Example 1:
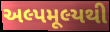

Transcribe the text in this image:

અલ્પમૂલ્યથી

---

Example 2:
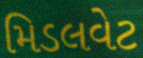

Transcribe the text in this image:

મિડલવેટ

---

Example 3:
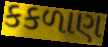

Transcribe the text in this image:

કકળાણ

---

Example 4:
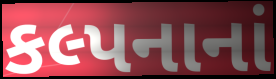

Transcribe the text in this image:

કલ્પનાનાં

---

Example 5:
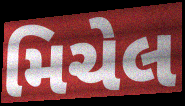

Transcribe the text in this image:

મિચેલ